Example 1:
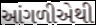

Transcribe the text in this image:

આંગળીએથી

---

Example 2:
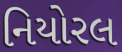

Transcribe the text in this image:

નિયોરલ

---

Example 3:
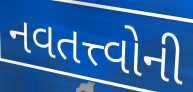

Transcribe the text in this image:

નવતત્ત્વોની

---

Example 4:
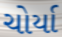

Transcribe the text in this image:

ચોર્યા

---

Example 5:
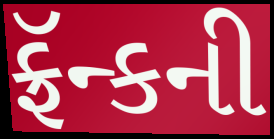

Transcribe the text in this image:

ફ્રૅન્કની